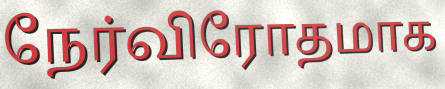
நேர்விரோதமாக